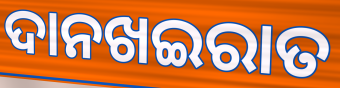
ଦାନଖଇରାତ